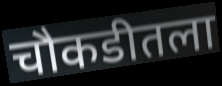
चौकडीतला